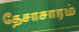
தேசாசாரம்